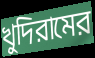
খুদিরামের